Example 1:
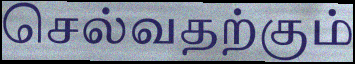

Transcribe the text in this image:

செல்வதற்கும்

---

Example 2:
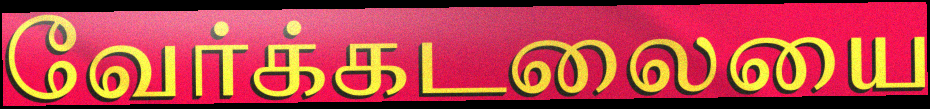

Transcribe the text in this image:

வேர்க்கடலையை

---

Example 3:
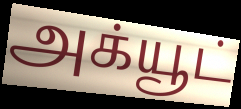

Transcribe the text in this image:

அக்யூட்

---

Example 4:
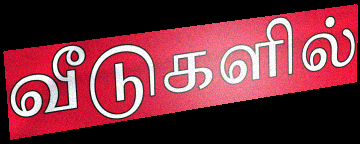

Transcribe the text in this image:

வீடுகளில்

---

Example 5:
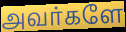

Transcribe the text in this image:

அவர்களே